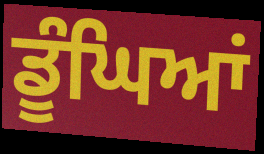
ਡੂੰਘਿਆਂ